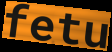
fetu